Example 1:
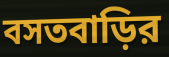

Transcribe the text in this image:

বসতবাড়ির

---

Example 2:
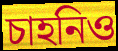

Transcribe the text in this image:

চাহনিও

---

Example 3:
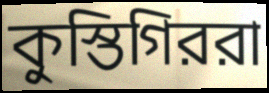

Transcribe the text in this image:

কুস্তিগিররা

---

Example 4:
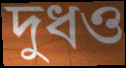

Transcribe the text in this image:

দুধও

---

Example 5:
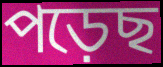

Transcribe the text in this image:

পড়েছ